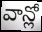
వాన్లో